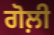
ਗੋਲ਼ੀ